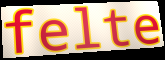
felte